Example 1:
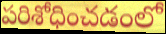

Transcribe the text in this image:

పరిశోధించడంలో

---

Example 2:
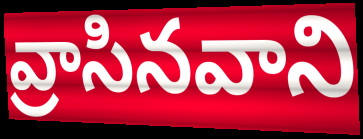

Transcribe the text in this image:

వ్రాసినవాని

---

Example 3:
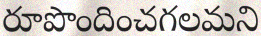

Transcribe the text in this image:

రూపొందించగలమని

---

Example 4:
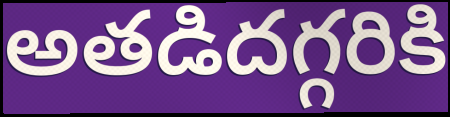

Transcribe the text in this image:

అతడిదగ్గరికి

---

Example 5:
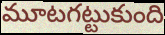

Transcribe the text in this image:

మూటగట్టుకుంది